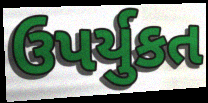
ઉપર્યુકત